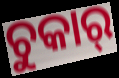
ଚୁକାର୍